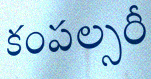
కంపల్సరీ